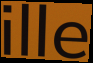
ille